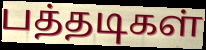
பத்தடிகள்